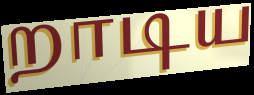
றாடிய